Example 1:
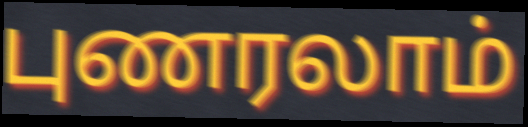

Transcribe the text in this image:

புணரலாம்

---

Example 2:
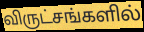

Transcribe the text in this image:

விருட்சங்களில்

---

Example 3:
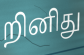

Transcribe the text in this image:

றினிது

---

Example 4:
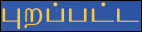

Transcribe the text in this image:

புறப்பட்ட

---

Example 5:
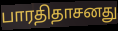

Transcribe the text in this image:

பாரதிதாசனது